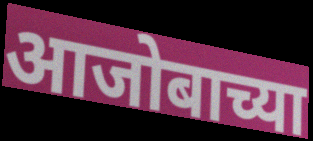
आजोबाच्या